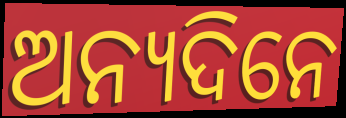
ଅନ୍ୟଦିନେ